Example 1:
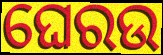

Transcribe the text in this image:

ଘେରଉ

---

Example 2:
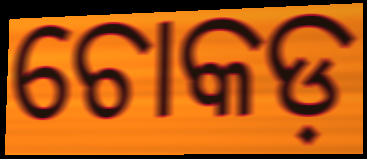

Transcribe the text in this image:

ଚୋକଡ଼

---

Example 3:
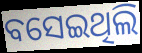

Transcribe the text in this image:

ବସେଇଥିଲି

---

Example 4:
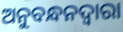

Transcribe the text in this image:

ଅନୁବନ୍ଧନଦ୍ୱାରା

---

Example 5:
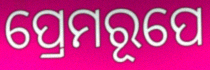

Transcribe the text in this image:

ପ୍ରେମରୂପେ